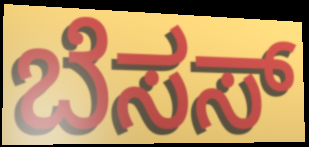
ಬೆಸಸ್